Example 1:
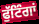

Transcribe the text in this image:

ਫੁੱਟਿੰਗਾਂ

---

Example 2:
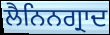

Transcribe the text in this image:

ਲੈਨਿਨਗ੍ਰਾਦ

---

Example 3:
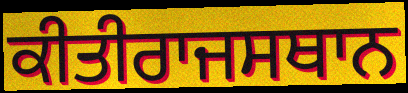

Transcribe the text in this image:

ਕੀਤੀਰਾਜਸਥਾਨ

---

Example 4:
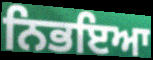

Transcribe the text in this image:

ਨਿਭਇਆ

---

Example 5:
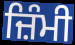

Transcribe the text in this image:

ਜ਼ਿੰਮੀ